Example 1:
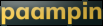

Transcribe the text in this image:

paampin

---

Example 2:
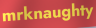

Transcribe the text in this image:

mrknaughty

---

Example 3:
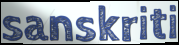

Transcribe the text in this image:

sanskriti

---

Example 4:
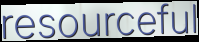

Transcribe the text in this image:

resourceful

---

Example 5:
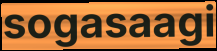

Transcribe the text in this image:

sogasaagi